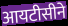
आयटीसीने